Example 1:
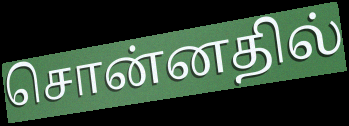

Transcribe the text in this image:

சொன்னதில்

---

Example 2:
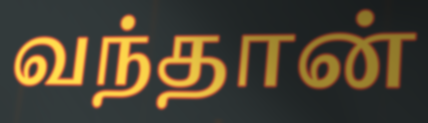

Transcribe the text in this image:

வந்தான்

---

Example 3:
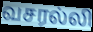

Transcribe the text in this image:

வசரல்லி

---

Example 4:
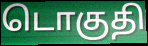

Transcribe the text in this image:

டொகுதி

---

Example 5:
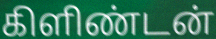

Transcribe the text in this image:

கிளிண்டன்